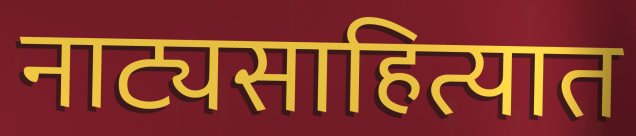
नाट्यसाहित्यात